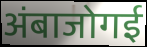
अंबाजोगई